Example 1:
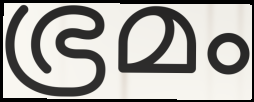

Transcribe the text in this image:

ഭ്രമം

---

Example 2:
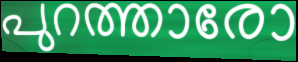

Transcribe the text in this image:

പുറത്താരോ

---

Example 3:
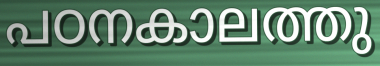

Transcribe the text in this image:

പഠനകാലത്തു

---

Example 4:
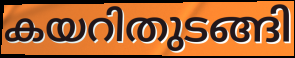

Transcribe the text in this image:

കയറിതുടങ്ങി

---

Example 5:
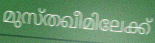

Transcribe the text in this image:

മുസ്തഖീമിലേക്ക്